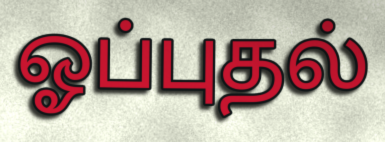
ஓப்புதல்